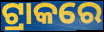
ଟ୍ରାକରେ